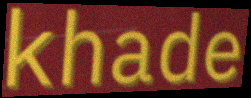
khade